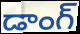
డాంగ్